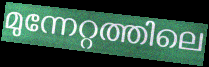
മുന്നേറ്റത്തിലെ